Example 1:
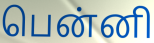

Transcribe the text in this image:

பென்னி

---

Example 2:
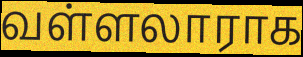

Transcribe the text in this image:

வள்ளலாராக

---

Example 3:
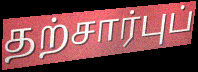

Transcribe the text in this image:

தற்சார்புப்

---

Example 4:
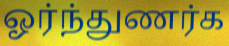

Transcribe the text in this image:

ஓர்ந்துணர்க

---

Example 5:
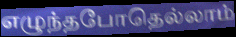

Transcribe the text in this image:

எழுந்தபோதெல்லாம்